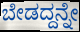
ಬೇಡದ್ದನ್ನೇ